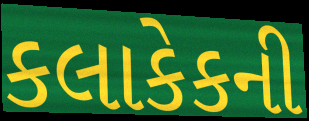
કલાકેકની